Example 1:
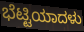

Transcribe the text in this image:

ಭೆಟ್ಟಿಯಾದಳು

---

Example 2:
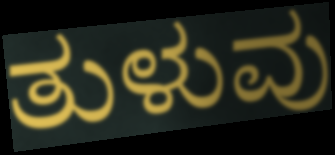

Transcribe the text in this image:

ತುಳುವು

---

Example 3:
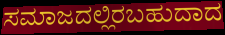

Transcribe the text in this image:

ಸಮಾಜದಲ್ಲಿರಬಹುದಾದ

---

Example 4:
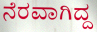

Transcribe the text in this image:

ನೆರವಾಗಿದ್ದ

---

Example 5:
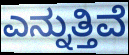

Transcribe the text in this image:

ಎನ್ನುತ್ತಿವೆ